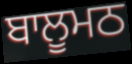
ਬਾਲੂਮਠ